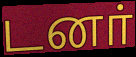
டனர்